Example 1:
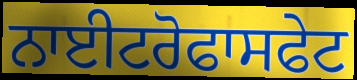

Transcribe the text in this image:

ਨਾਈਟਰੋਫਾਸਫੇਟ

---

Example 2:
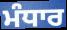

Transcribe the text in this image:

ਮੰਧਾਰ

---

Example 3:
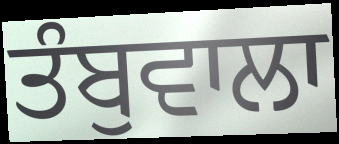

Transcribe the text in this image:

ਤੰਬੁਵਾਲਾ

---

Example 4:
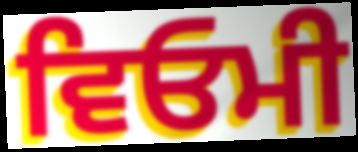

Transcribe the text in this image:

ਵਿਓਮੀ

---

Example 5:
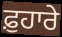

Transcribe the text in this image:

ਫ਼ੁਹਾਰੇ